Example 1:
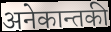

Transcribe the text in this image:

अनेकान्तकी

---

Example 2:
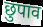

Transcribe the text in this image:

छुपाव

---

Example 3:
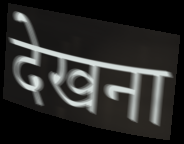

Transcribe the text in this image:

देखना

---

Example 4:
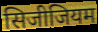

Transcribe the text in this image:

सिजीजियम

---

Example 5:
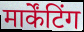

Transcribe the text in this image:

मार्केंटिंग